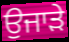
ਉਜਾੜੇ